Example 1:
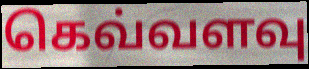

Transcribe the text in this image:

கெவ்வளவு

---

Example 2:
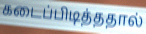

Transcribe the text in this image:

கடைப்பிடித்ததால்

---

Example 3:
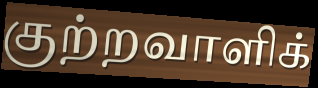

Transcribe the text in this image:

குற்றவாளிக்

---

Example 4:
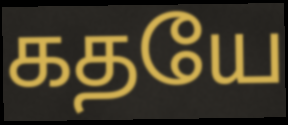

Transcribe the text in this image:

கதயே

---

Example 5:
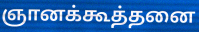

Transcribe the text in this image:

ஞானக்கூத்தனை